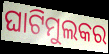
ଘାଟିମୁଲକର